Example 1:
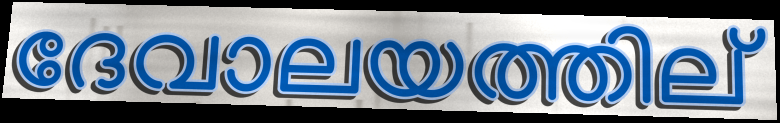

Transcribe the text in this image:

ദേവാലയത്തില്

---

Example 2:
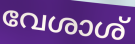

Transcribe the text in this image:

വേശാശ്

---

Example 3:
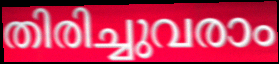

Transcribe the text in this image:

തിരിച്ചുവരാം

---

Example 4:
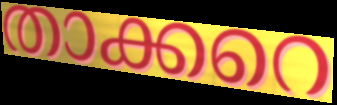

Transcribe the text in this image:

താക്കറെ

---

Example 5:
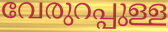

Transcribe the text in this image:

വേരുറപ്പുള്ള